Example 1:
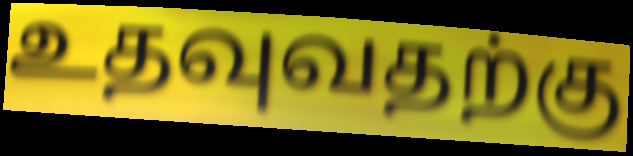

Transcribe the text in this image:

உதவுவதற்கு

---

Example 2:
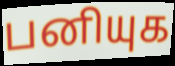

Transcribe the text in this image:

பனியுக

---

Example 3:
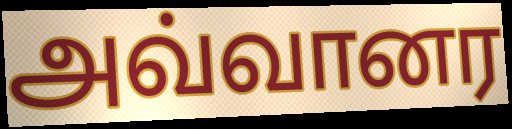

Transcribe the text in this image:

அவ்வானர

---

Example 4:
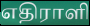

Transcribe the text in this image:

எதிராளி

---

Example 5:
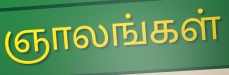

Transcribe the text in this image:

ஞாலங்கள்